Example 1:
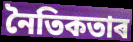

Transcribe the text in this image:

নৈতিকতাৰ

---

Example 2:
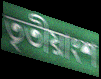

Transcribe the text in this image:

তৃতীয়াংশ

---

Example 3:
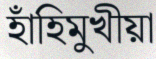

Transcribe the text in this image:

হাঁহিমুখীয়া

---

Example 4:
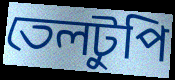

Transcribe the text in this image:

তেলটুপি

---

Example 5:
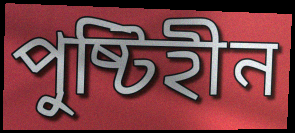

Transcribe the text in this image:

পুষ্টিহীন